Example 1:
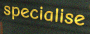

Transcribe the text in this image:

specialise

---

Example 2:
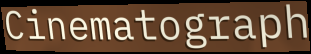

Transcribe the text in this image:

Cinematograph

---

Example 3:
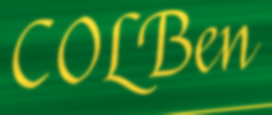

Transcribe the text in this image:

COLBen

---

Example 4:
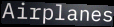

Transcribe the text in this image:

Airplanes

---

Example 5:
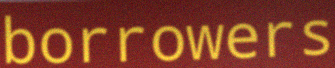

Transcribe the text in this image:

borrowers